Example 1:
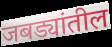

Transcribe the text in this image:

जबड्यांतील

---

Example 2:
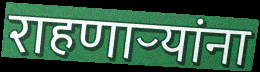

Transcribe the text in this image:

राहणाऱ्यांना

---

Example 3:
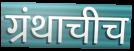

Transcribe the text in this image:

ग्रंथाचीच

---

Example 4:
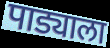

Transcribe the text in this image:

पाड्याला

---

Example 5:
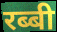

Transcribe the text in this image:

रब्बी